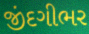
જીંદગીભર